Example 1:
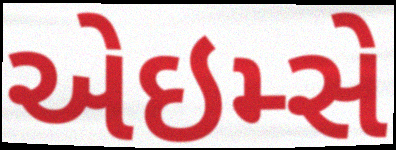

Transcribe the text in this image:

એઇમ્સે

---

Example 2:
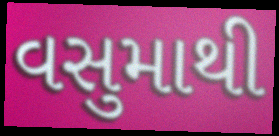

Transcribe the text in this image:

વસુમાથી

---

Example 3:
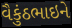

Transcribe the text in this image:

વૈકુંઠભાઇને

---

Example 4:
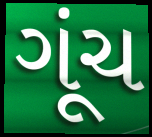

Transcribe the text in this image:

ગૂંચ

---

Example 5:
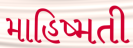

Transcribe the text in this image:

માહિષ્મતી